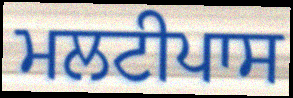
ਮਲਟੀਪਾਸ